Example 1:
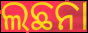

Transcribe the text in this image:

ଲଛନା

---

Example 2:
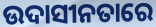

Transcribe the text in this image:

ଉଦାସୀନତାରେ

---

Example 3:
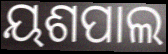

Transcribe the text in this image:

ୟଶପାଲ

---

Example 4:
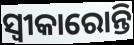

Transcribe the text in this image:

ସ୍ଵୀକାରୋନ୍ତି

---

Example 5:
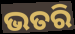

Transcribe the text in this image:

ଭତରି